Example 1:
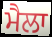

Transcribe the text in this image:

ਮੈਲਾ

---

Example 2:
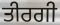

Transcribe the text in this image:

ਤੀਰਗੀ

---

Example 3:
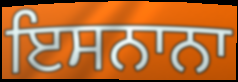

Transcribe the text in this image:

ਇਸਨਾਨਾ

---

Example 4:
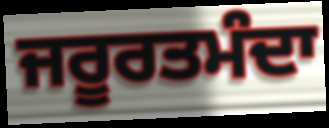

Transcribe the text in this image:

ਜਰੂਰਤਮੰਦਾ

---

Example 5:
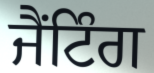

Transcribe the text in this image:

ਜੈਂਟਿੰਗ